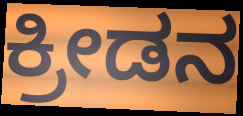
ಕ್ರೀಡನ